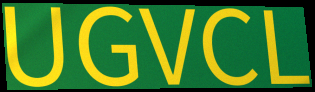
UGVCL